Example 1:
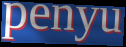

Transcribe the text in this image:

penyu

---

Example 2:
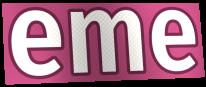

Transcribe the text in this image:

eme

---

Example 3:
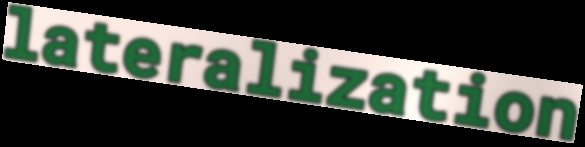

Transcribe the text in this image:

lateralization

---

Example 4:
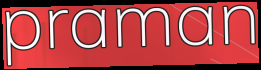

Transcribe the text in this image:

praman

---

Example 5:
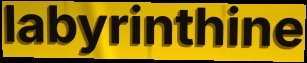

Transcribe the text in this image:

labyrinthine